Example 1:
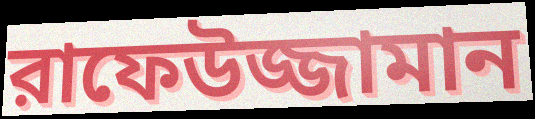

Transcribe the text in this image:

রাফেউজ্জামান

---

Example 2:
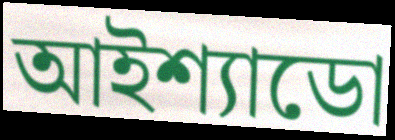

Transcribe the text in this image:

আইশ্যাডো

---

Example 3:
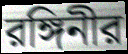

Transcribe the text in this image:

রঙ্গিনীর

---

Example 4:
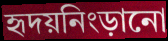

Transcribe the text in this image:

হৃদয়নিংড়ানো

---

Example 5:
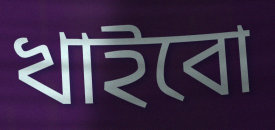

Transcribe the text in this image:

খাইবো